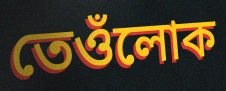
তেওঁলোক